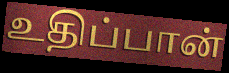
உதிப்பான்